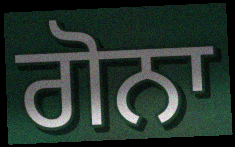
ਗੋਨਾ